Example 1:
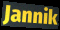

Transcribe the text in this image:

Jannik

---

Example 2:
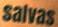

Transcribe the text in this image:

salvas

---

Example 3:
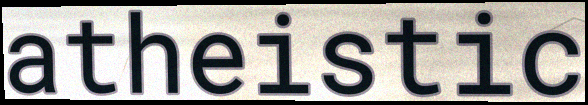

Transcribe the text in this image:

atheistic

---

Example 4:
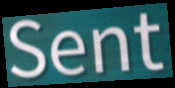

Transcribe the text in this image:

Sent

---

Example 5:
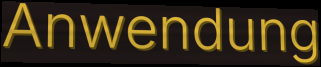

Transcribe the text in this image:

Anwendung